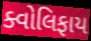
ક્વોલિફાય